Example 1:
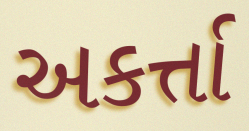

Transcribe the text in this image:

અકર્ત્તા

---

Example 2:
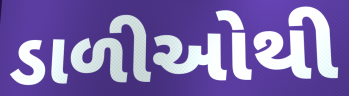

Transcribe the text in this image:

ડાળીઓથી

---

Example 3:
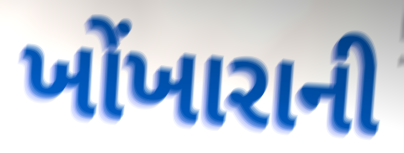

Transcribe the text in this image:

ખોંખારાની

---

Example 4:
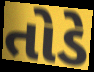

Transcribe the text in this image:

તોડે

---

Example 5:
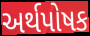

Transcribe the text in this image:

અર્થપોષક